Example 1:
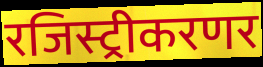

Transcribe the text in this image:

रजिस्ट्रीकरणर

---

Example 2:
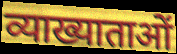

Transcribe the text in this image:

व्याख्याताओं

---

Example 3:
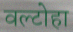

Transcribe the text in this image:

वल्टोहा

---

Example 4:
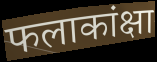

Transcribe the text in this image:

फलाकांक्षा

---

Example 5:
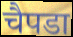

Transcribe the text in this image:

चैपडा